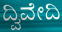
ದ್ವಿವೇದಿ